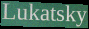
Lukatsky